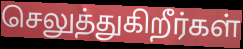
செலுத்துகிறீர்கள்